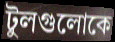
টুলগুলোকে